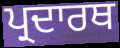
ਪ੍ਰਦਾਰਥ